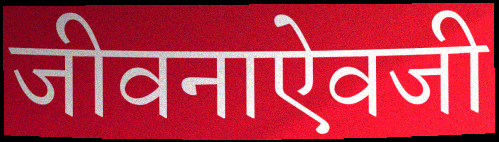
जीवनाऐवजी